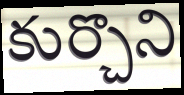
కుర్చొని